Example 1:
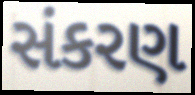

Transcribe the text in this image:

સંકરણ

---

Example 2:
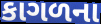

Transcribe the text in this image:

કાગળના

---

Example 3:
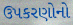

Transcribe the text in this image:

ઉપકરણોનો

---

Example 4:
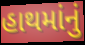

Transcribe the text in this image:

હાથમાંનું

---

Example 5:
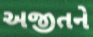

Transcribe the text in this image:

અજીતને